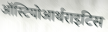
ऑस्टियोआर्थराइटिस